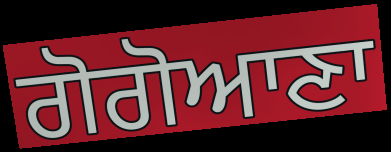
ਗੋਗੋਆਣਾ